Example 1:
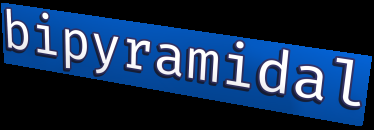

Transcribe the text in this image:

bipyramidal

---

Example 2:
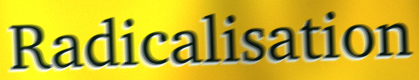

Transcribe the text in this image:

Radicalisation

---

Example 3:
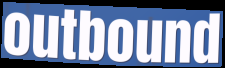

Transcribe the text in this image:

outbound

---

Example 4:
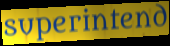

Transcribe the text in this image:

superintend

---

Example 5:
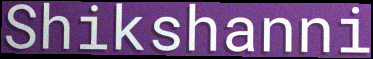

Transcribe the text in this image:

Shikshanni